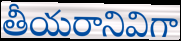
తీయరానివిగా